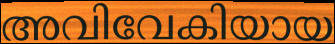
അവിവേകിയായ